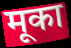
मूका